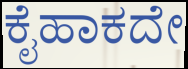
ಕೈಹಾಕದೇ